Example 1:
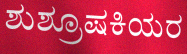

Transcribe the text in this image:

ಶುಶ್ರೂಷಕಿಯರ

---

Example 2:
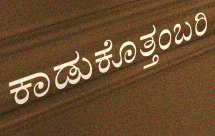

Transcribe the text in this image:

ಕಾಡುಕೊತ್ತಂಬರಿ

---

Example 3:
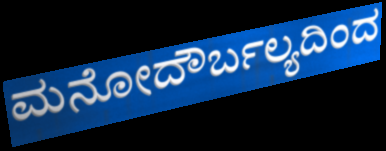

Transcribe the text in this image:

ಮನೋದೌರ್ಬಲ್ಯದಿಂದ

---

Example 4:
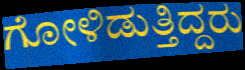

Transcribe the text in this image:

ಗೋಳಿಡುತ್ತಿದ್ದರು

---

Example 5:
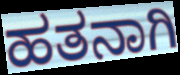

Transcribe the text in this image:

ಹತನಾಗಿ